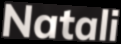
Natali